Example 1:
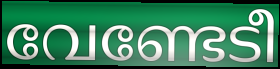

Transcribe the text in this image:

വേണ്ടേടീ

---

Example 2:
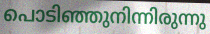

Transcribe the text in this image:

പൊടിഞ്ഞുനിന്നിരുന്നു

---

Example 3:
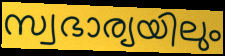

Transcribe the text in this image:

സ്വഭാര്യയിലും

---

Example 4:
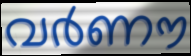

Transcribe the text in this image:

വർണൗ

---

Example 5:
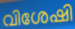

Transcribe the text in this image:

വിശേഷി